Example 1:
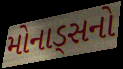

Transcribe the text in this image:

મોનાડ્સનો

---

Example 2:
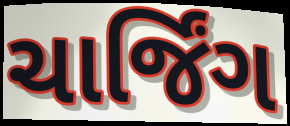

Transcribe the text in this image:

ચાર્જિંગ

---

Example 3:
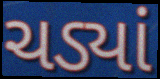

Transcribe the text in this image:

ચડ્યાં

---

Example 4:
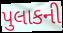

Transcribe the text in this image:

પુલાકની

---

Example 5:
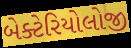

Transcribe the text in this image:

બેક્ટેરિયોલોજી